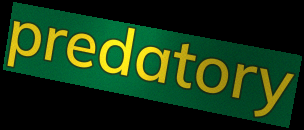
predatory